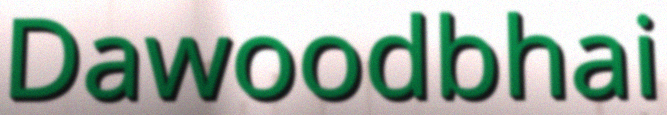
Dawoodbhai